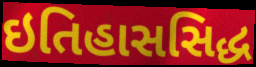
ઇતિહાસસિદ્ધ